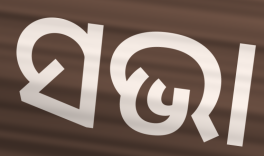
ସଭା